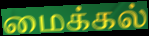
மைக்கல்